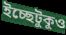
ইচ্ছেটুকুও